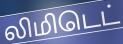
லிமிடெட்